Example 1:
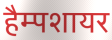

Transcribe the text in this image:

हैम्पशायर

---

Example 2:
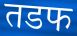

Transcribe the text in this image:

तडफ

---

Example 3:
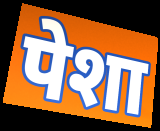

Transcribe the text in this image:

पेशा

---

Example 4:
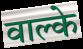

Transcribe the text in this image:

वाल्के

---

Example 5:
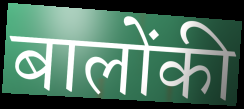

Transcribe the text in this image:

बालोंकी